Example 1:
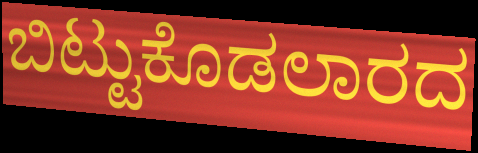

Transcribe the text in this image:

ಬಿಟ್ಟುಕೊಡಲಾರದ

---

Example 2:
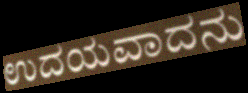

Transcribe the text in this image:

ಉದಯವಾದನು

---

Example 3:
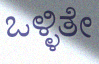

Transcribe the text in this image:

ಒಳ್ಳಿತೇ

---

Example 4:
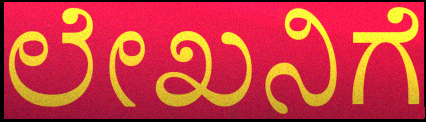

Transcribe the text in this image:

ಲೇಖನಿಗೆ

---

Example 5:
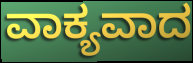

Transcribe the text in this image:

ವಾಕ್ಯವಾದ